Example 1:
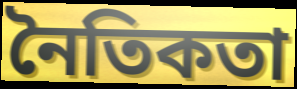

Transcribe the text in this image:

নৈতিকতা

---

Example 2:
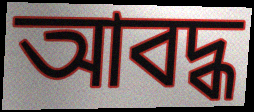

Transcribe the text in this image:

আবদ্ধ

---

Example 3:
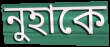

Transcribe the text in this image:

নুহাকে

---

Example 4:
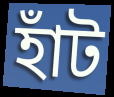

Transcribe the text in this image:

হাঁট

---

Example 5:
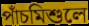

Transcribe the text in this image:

পাঁচমিশুলে